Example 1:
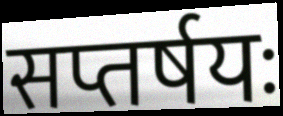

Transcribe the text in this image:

सप्तर्षयः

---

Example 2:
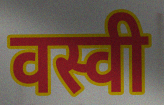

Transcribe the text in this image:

वस्वी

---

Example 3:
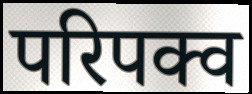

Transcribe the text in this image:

परिपक्व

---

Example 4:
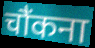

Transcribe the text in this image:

चौंकना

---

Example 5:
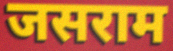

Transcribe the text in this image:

जसराम